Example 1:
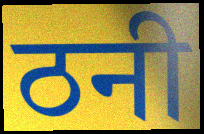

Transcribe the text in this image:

ठनी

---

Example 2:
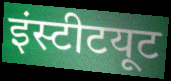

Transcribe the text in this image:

इंस्‍टीटयूट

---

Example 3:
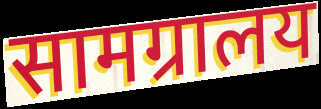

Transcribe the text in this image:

सामग्रालय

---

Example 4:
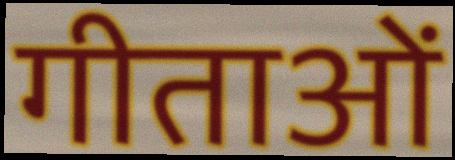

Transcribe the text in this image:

गीताओं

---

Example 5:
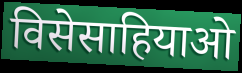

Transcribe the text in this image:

विसेसाहियाओ